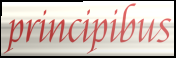
principibus